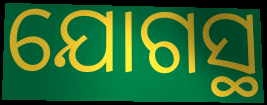
ଯୋଗସ୍ଥ